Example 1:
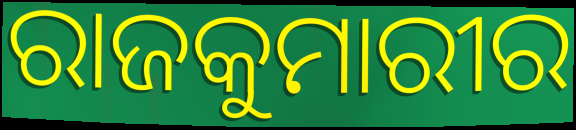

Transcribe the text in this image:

ରାଜକୁମାରୀର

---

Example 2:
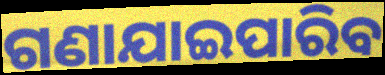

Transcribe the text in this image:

ଗଣାଯାଇପାରିବ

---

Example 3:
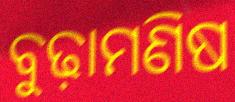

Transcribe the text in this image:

ବୁଢ଼ାମଣିଷ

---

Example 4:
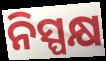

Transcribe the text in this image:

ନିସ୍ପକ୍ଷ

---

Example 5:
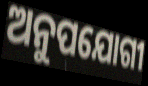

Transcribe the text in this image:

ଅନୁପଯୋଗୀ